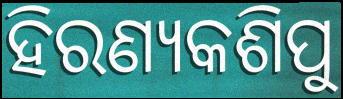
ହିରଣ୍ୟକଶିପୁ